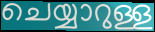
ചെയ്യാറുള്ള